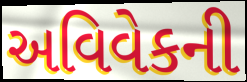
અવિવેકની